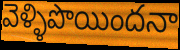
వెళ్ళిపొయిందనా